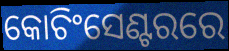
କୋଚିଂସେଣ୍ଟରରେ